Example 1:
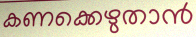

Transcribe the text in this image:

കണക്കെഴുതാൻ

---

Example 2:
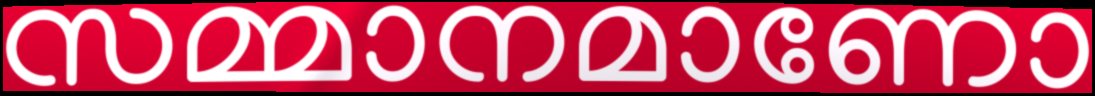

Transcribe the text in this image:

സമ്മാനമാണോ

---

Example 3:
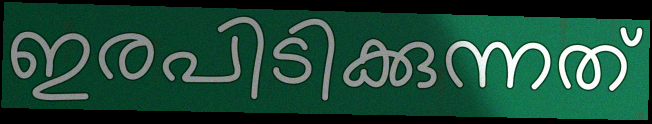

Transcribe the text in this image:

ഇരപിടിക്കുന്നത്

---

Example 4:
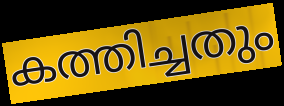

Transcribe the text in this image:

കത്തിച്ചതും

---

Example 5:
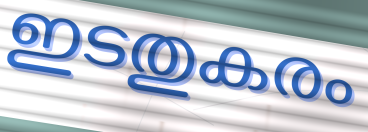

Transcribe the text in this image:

ഇടതുകരം